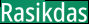
Rasikdas